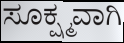
ಸೂಕ್ಷ್ಮವಾಗಿ